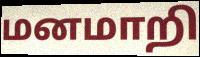
மனமாறி